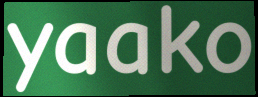
yaako